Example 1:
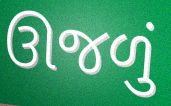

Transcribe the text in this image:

ઊજળું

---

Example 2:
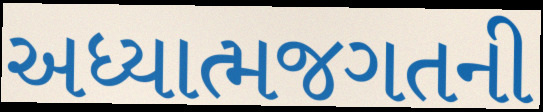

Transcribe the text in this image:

અધ્યાત્મજગતની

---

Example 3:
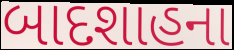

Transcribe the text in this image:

બાદશાહના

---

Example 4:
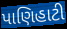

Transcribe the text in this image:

પાણિહાટી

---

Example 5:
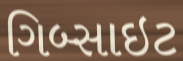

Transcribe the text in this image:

ગિબ્સાઇટ